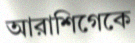
আরাশিগেকে